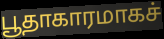
பூதாகாரமாகச்